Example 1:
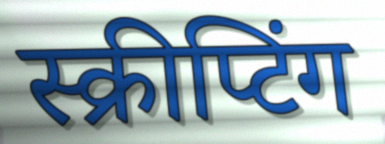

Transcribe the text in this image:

स्क्रीप्टिंग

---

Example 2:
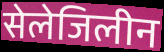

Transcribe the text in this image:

सेलेजिलीन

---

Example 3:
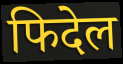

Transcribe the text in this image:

फिदेल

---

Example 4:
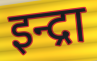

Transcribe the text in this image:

इन्द्रा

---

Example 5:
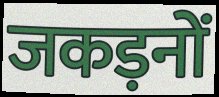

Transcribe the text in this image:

जकड़नों